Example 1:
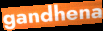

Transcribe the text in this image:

gandhena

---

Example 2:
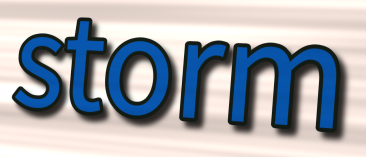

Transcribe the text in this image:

storm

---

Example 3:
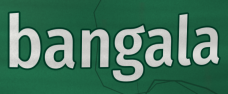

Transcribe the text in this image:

bangala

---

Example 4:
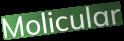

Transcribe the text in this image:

Molicular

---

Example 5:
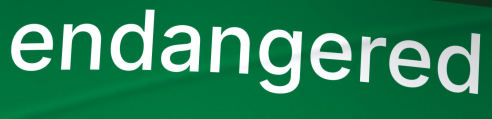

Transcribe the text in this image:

endangered